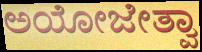
ಅಯೋಜೇತ್ವಾ